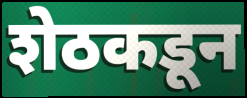
शेठकडून